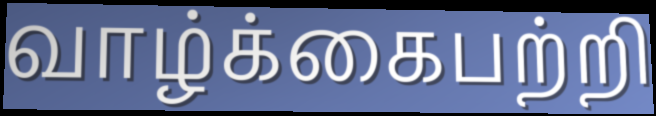
வாழ்க்கைபற்றி